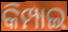
କିମ୍ପାଇ